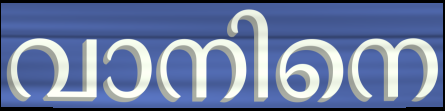
വാനിനെ